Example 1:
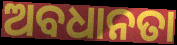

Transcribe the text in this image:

ଅବଧାନତା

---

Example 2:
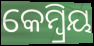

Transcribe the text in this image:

କେମ୍ବ୍ରିୟ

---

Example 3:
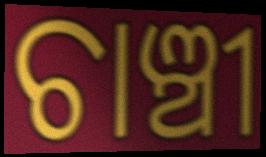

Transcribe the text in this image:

ଚାଞ୍ଚୀ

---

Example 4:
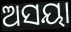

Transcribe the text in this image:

ଅସୟା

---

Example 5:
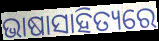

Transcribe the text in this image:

ଭାଷାସାହିତ୍ୟରେ